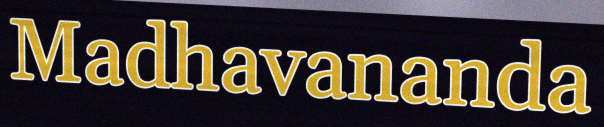
Madhavananda